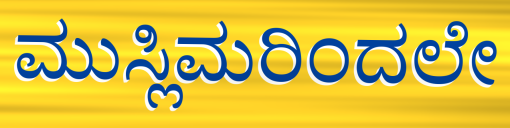
ಮುಸ್ಲಿಮರಿಂದಲೇ